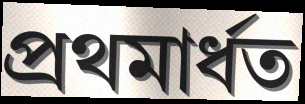
প্ৰথমাৰ্ধত